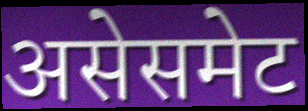
असेसमेट